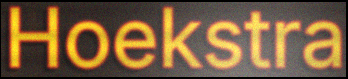
Hoekstra